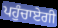
ਪਹੁੰਚਾਏਗੀ